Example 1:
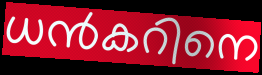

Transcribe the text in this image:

ധൻകറിനെ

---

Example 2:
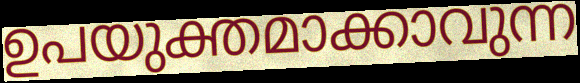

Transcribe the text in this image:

ഉപയുക്തമാക്കാവുന്ന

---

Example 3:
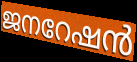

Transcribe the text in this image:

ജനറേഷൻ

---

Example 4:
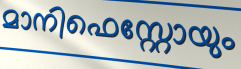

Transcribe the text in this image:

മാനിഫെസ്റ്റോയും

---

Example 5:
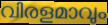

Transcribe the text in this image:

വിരളമാവും